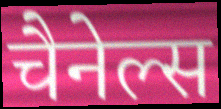
चैनेल्स